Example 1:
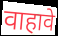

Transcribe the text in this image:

वाहावे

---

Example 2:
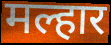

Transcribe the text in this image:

मल्हार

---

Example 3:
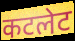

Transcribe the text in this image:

कटलेट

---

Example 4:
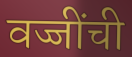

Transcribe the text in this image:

वज्जींची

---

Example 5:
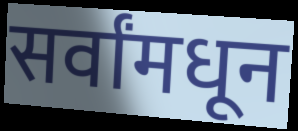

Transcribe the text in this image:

सर्वांमधून